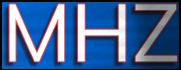
MHZ